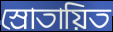
স্রোতায়িত